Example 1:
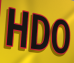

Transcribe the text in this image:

HDO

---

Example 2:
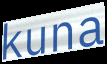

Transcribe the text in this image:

kuna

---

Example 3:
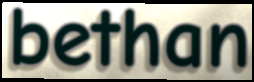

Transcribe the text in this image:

bethan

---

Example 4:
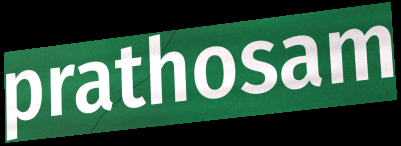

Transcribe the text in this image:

prathosam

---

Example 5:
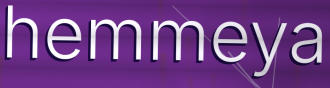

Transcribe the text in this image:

hemmeya